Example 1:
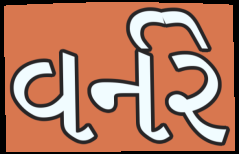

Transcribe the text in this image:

વર્નરે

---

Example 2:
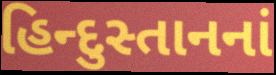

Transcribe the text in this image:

હિન્દુસ્તાનનાં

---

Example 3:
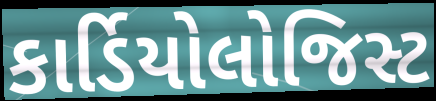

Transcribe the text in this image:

કાર્ડિયોલોજિસ્ટ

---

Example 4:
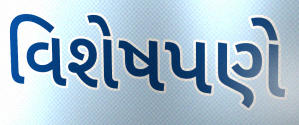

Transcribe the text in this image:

વિશેષપણે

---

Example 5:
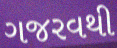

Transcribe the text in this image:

ગજરવથી